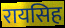
रायसिह